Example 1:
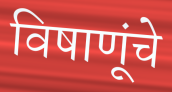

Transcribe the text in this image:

विषाणूंचे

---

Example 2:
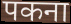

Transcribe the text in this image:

पकना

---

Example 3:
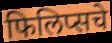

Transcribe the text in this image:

फिलिप्सचे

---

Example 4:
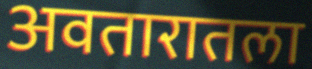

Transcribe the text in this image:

अवतारातला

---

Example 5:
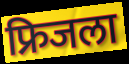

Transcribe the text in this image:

फ्रिजला